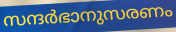
സന്ദർഭാനുസരണം